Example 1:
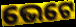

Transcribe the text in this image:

ଭେଟେ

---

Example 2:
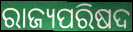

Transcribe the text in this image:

ରାଜ୍ୟପରିଷଦ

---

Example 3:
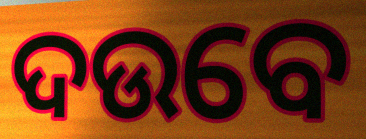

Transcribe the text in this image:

ଦଉବେ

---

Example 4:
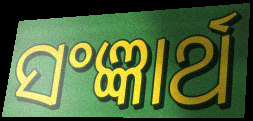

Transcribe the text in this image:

ସଂଜ୍ଞାର୍ଥ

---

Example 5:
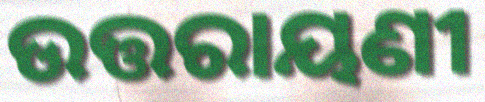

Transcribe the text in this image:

ଉତ୍ତରାୟଣୀ